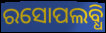
ରସୋପଲବ୍ଧି